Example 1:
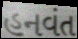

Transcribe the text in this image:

હનવંત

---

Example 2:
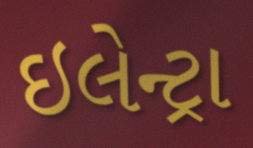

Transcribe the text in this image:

ઇલેન્ટ્રા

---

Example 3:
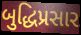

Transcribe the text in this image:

બુદ્ધિપ્રસાર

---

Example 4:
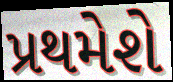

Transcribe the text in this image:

પ્રથમેશે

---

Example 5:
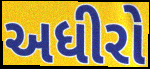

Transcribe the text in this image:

અધીરો